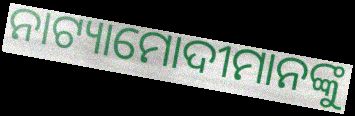
ନାଟ୍ୟାମୋଦୀମାନଙ୍କୁ